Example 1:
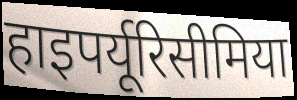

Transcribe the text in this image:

हाइपर्यूरिसीमिया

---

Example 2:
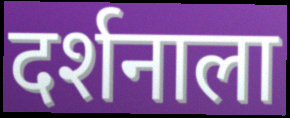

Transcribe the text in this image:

दर्शनाला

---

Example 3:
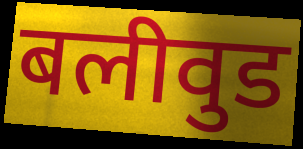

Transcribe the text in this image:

बलीवुड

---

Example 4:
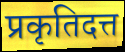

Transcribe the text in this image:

प्रकृतिदत्त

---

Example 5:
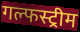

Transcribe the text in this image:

गल्फस्ट्रीम